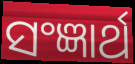
ସଂଜ୍ଞାର୍ଥ